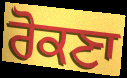
ਰੋਕਣਾ